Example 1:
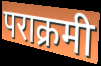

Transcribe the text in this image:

पराक्रमी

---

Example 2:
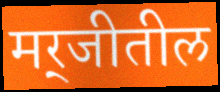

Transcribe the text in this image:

मर्जीतील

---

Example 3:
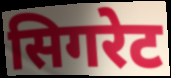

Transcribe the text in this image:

सिगरेट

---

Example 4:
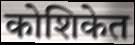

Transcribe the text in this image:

कोशिकेत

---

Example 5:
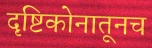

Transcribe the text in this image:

दृष्टिकोनातूनच